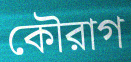
কৌরাগ